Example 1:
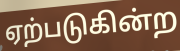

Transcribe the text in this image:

ஏற்படுகின்ற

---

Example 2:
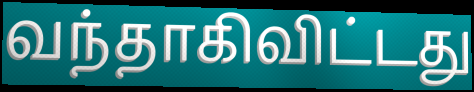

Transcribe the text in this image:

வந்தாகிவிட்டது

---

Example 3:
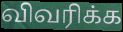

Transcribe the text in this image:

விவரிக்க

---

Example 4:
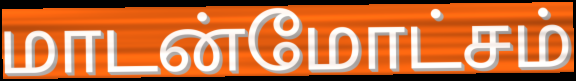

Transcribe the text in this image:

மாடன்மோட்சம்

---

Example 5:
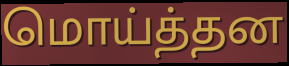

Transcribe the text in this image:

மொய்த்தன